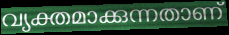
വ്യക്തമാക്കുന്നതാണ്